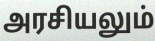
அரசியலும்